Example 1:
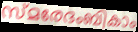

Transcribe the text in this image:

സ്മരേദംബികാം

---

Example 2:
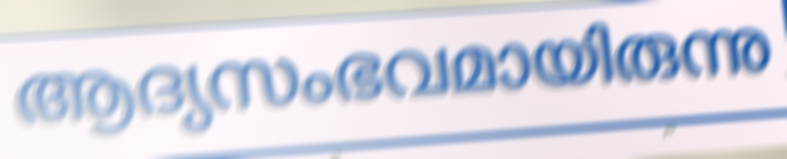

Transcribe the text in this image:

ആദ്യസംഭവമായിരുന്നു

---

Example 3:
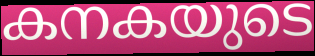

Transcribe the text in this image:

കനകയുടെ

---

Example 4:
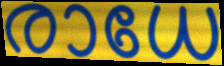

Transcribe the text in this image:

രാധേ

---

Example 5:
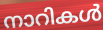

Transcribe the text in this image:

നാറികൾ